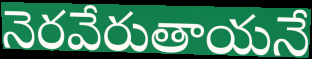
నెరవేరుతాయనే